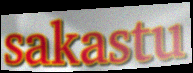
sakastu